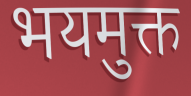
भयमुक्त